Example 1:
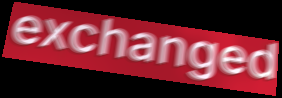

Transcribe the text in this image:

exchanged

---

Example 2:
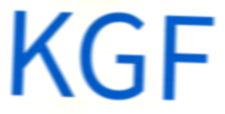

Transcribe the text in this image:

KGF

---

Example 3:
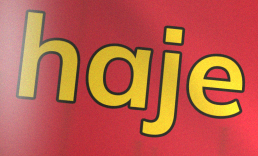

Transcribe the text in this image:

haje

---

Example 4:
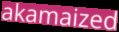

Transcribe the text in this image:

akamaized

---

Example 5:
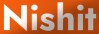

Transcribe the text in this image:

Nishit